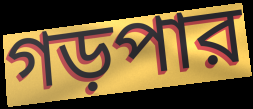
গড়পার